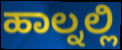
ಹಾಲ್ನಲ್ಲಿ